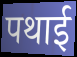
पथाई